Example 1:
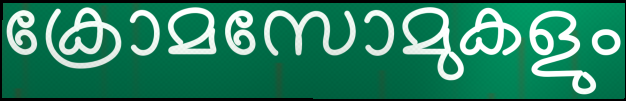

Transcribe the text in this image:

ക്രോമസോമുകളും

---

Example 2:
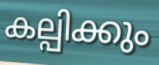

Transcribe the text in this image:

കല്പിക്കും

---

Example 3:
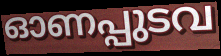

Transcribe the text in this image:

ഓണപ്പുടവ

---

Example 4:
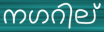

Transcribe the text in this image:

നഗറില്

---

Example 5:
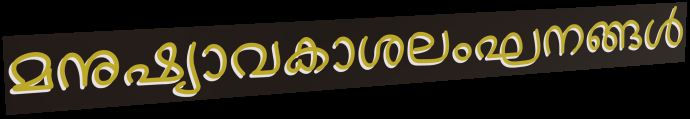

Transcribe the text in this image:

മനുഷ്യാവകാശലംഘനങ്ങൾ